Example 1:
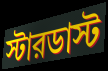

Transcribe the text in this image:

স্টারডাস্ট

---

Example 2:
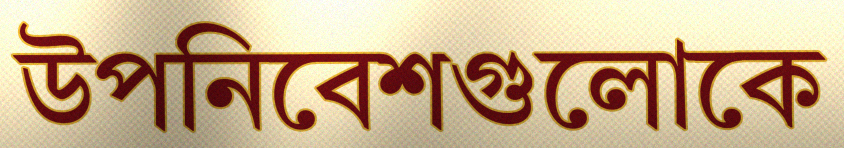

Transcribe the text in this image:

উপনিবেশগুলোকে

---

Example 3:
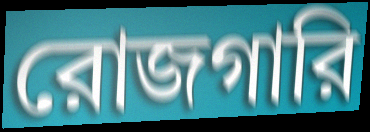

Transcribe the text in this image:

রোজগারি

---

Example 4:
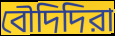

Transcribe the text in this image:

বৌদিদিরা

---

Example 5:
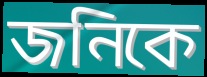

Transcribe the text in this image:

জনিকে